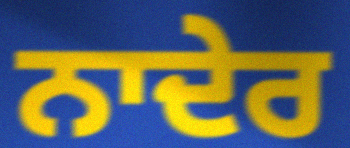
ਨਾਦੇਰ